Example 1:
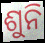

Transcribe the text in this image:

ଶୁନି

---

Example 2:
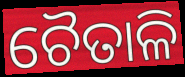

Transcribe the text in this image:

ଚୈତାଳି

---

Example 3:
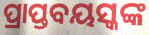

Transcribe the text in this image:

ପ୍ରାପ୍ତବୟସ୍କଙ୍କ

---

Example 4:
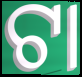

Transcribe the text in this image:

ଟା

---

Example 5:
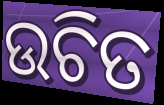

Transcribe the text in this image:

ଉଚିତ